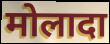
मोलादा